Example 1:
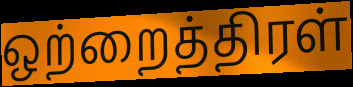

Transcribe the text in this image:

ஒற்றைத்திரள்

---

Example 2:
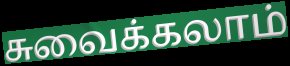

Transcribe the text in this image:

சுவைக்கலாம்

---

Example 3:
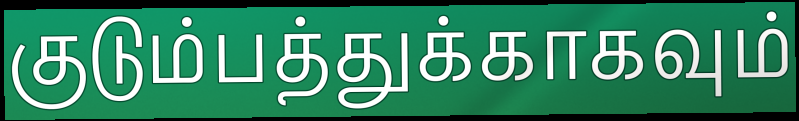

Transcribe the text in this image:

குடும்பத்துக்காகவும்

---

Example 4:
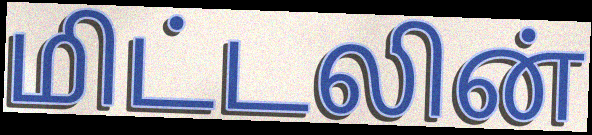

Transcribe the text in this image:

மிட்டலின்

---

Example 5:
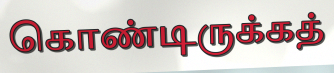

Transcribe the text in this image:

கொண்டிருக்கத்